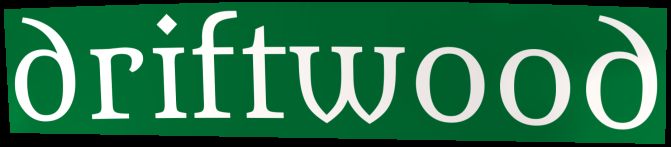
driftwood